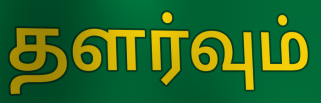
தளர்வும்